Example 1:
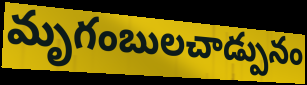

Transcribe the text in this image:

మృగంబులచాడ్పునం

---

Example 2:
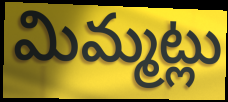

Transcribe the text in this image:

మిమ్మట్లు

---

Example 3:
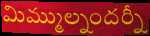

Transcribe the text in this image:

మిమ్ముల్నందర్నీ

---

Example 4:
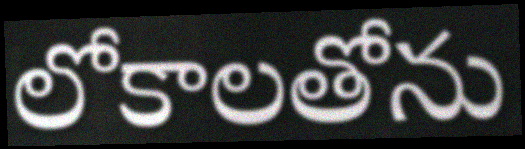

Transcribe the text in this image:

లోకాలతోను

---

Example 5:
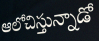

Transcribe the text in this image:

ఆలోచిస్తున్నాడో